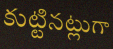
కుట్టినట్లుగా